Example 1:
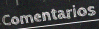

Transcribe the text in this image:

Comentarios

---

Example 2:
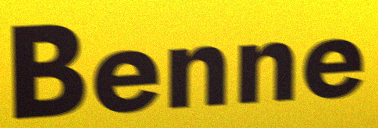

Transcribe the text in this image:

Benne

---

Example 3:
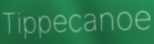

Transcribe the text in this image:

Tippecanoe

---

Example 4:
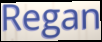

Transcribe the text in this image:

Regan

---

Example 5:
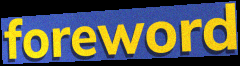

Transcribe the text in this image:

foreword